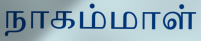
நாகம்மாள்